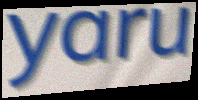
yaru